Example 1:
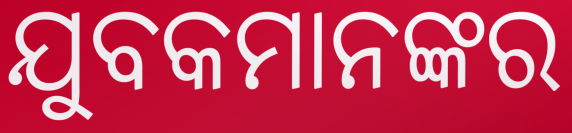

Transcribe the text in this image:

ଯୁବକମାନଙ୍କର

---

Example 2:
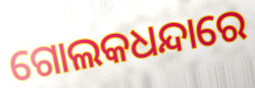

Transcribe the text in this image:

ଗୋଲକଧନ୍ଦାରେ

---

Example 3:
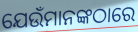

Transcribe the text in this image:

ଯେଉଁମାନଙ୍କଠାରେ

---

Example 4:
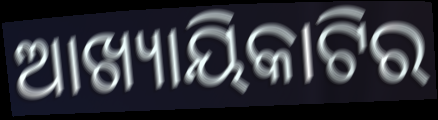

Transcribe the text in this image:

ଆଖ୍ୟାୟିକାଟିର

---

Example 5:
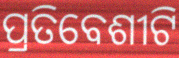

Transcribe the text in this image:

ପ୍ରତିବେଶୀଟି